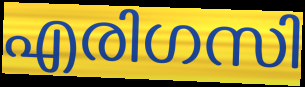
എരിഗസി